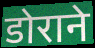
डोराने